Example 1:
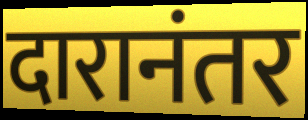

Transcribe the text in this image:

दारानंतर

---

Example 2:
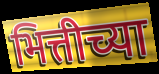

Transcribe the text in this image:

भित्तीच्या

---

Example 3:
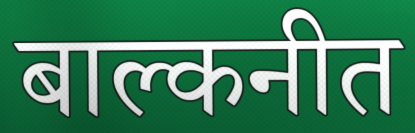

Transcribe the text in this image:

बाल्कनीत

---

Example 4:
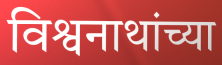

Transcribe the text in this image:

विश्वनाथांच्या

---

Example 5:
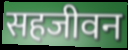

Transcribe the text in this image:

सहजीवन